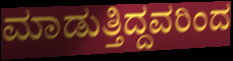
ಮಾಡುತ್ತಿದ್ದವರಿಂದ